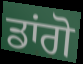
ਡਾਂਗੋ